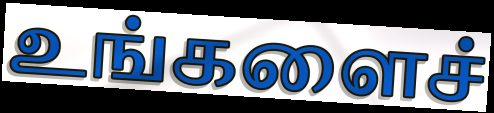
உங்களைச்